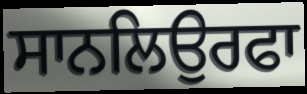
ਸਾਨਲਿਉਰਫਾ